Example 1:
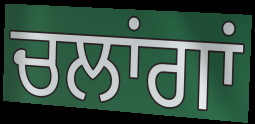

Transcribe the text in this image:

ਚਲਾਂਗਾਂ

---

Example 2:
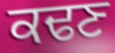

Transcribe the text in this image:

ਕਢਣ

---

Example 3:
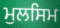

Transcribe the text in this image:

ਮੁਲਸਿਮ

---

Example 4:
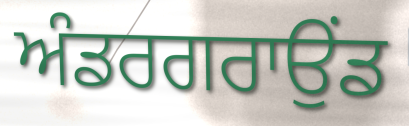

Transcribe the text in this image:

ਅੰਡਰਗਰਾਉਂਡ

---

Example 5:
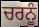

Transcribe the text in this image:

ਚਰਨੂੰ